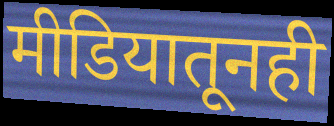
मीडियातूनही